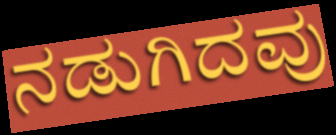
ನಡುಗಿದವು